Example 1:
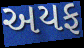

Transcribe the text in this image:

અયફ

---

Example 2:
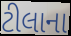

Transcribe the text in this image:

ટીલાના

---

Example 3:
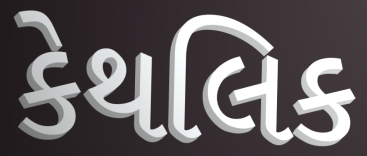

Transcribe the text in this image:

કેથલિક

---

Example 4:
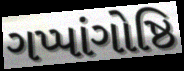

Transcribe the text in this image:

ગપ્પાંગોષ્ઠિ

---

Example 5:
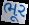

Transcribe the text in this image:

ભૂર